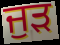
ਜੁੜ